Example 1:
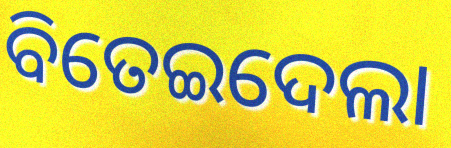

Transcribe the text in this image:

ବିତେଇଦେଲା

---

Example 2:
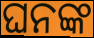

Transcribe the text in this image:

ଘନଙ୍କ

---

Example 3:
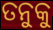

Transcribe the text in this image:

ତନୁକୁ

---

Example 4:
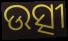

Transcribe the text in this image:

ଉତ୍ସୀ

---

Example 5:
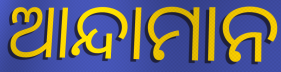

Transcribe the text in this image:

ଆନ୍ଦାମାନ